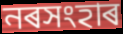
নৰসংহাৰ